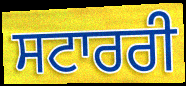
ਸਟਾਰਰੀ